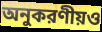
অনুকরণীয়ও